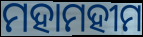
ମହାମହୀମ